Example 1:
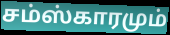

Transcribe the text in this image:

சம்ஸ்காரமும்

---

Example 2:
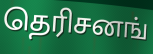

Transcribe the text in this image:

தெரிசனங்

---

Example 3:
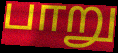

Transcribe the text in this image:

பாறு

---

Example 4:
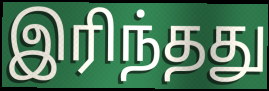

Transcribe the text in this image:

இரிந்தது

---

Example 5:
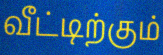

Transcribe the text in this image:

வீட்டிற்கும்